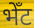
भेँट